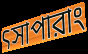
ৎসাপারাং